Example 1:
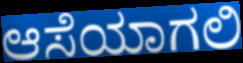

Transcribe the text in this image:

ಆಸೆಯಾಗಲಿ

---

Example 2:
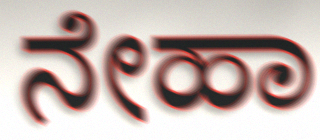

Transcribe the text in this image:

ನೇಹಾ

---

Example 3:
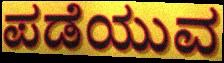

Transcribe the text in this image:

ಪಡೆಯುವ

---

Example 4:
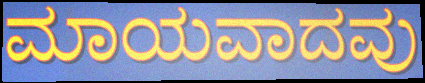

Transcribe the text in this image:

ಮಾಯವಾದವು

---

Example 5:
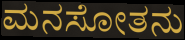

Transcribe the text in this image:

ಮನಸೋತನು